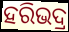
ହରିଭଦ୍ର